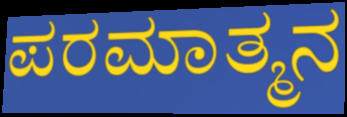
ಪರಮಾತ್ಮನ